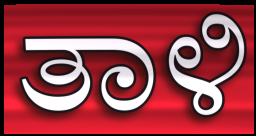
ತಾಳಿ